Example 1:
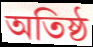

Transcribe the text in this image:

অতিষ্ঠ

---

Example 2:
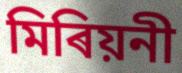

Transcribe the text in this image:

মিৰিয়নী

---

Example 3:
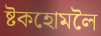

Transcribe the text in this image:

ষ্টকহোমলৈ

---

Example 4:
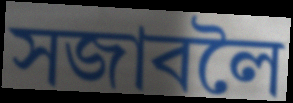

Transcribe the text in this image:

সজাবলৈ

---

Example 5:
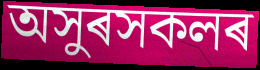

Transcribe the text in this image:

অসুৰসকলৰ